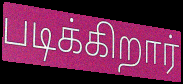
படிக்கிறார்